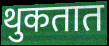
थुकतात